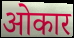
ओकार